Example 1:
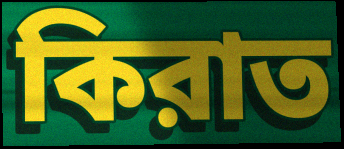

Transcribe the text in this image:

কিরাত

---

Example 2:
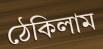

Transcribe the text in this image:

ঠেকিলাম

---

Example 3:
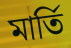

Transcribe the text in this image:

মার্তি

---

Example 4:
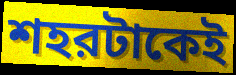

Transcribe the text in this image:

শহরটাকেই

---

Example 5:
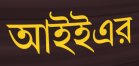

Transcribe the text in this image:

আইইএর